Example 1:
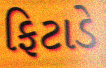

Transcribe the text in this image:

ફિટાડે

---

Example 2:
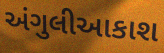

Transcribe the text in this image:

અંગુલીઆકાશ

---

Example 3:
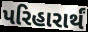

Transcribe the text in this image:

પરિહારાર્થં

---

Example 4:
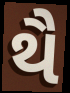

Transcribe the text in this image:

થૈ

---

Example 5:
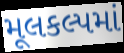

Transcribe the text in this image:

મૂલકલ્પમાં